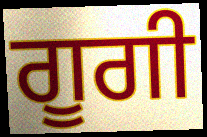
ਗੂਗੀ